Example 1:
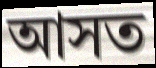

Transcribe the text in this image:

আসত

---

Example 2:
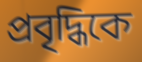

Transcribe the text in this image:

প্রবৃদ্ধিকে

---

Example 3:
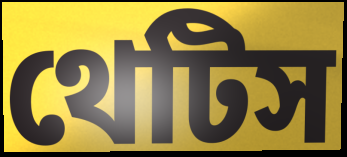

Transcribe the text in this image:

থেটিস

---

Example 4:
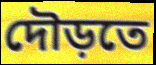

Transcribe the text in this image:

দৌড়তে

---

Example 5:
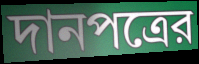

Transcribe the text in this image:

দানপত্রের